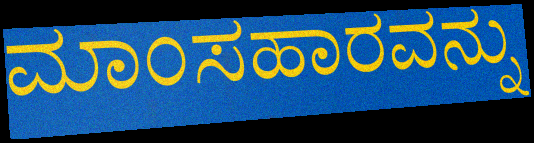
ಮಾಂಸಹಾರವನ್ನು